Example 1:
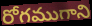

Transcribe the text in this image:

రోగముగాని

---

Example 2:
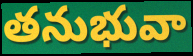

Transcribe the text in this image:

తనుభువా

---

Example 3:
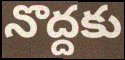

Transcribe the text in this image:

నొద్దకు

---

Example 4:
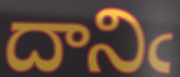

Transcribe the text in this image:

దానిఁ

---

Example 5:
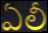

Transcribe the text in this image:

ఏలీ